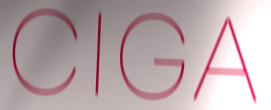
CIGA